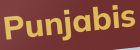
Punjabis